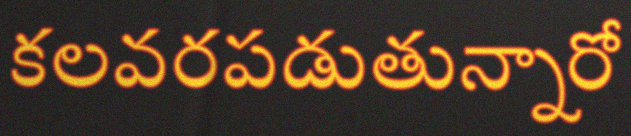
కలవరపడుతున్నారో